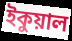
ইকুয়াল